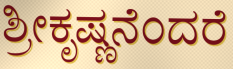
ಶ್ರೀಕೃಷ್ಣನೆಂದರೆ